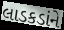
લાડકડાંને